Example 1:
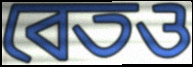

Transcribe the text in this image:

বেতও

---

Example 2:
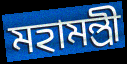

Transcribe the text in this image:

মহামন্ত্রী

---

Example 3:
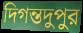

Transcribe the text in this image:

দিগন্তদুপুর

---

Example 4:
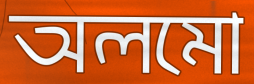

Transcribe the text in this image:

অলমো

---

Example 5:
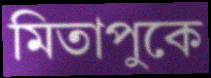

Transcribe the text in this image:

মিতাপুকে